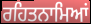
ਰਹਿਤਨਾਮਿਆਂ